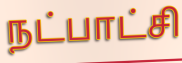
நட்பாட்சி